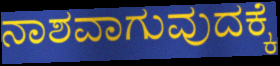
ನಾಶವಾಗುವುದಕ್ಕೆ